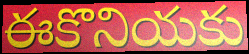
ఈకొనియకు